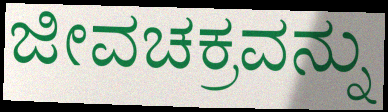
ಜೀವಚಕ್ರವನ್ನು